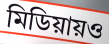
মিডিয়ায়ও